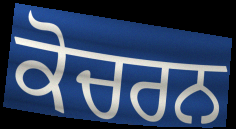
ਕੋਚਰਨ